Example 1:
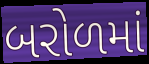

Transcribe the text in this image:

બરોળમાં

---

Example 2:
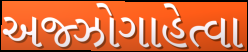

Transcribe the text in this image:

અજ્ઝોગાહેત્વા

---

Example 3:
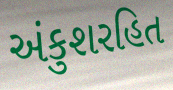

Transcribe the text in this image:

અંકુશરહિત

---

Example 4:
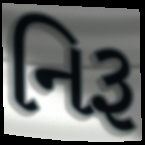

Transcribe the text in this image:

નિરૂ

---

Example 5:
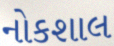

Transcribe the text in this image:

નોકશાલ